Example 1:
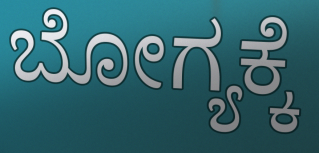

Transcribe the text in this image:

ಬೋಗ್ಯಕ್ಕೆ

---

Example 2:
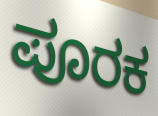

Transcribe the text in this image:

ಪೂರಕ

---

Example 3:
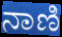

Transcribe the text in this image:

ನಾಣಿ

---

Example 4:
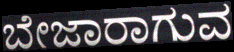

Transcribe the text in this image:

ಬೇಜಾರಾಗುವ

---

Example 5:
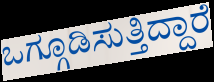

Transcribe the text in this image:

ಒಗ್ಗೂಡಿಸುತ್ತಿದ್ದಾರೆ